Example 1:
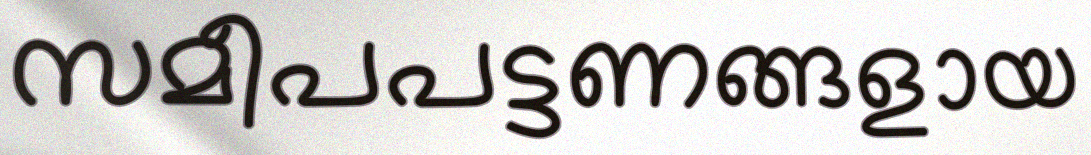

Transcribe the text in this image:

സമീപപട്ടണങ്ങളായ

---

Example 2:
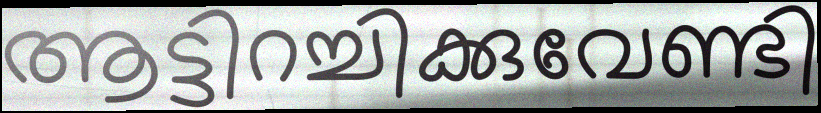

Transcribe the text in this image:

ആട്ടിറച്ചിക്കുവേണ്ടി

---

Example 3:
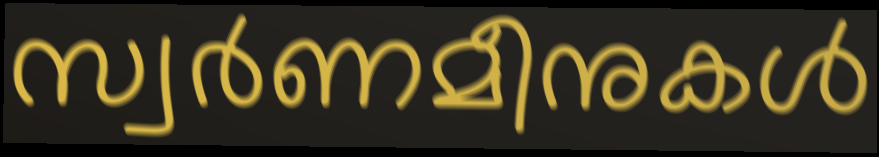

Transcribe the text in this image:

സ്വർണമീനുകൾ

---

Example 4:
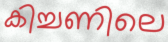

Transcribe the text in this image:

കിച്ചണിലെ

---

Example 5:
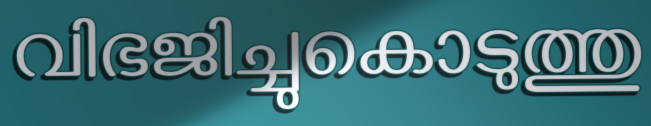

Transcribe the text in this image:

വിഭജിച്ചുകൊടുത്തു